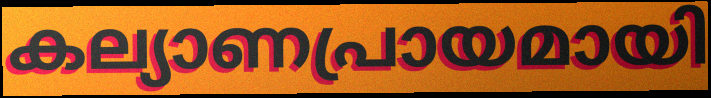
കല്യാണപ്രായമായി